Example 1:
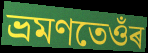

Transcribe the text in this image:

ভ্ৰমণতেওঁৰ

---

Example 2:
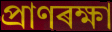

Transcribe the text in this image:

প্ৰাণৰক্ষা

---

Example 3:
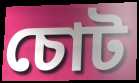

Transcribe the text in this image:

চোট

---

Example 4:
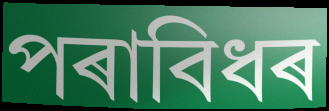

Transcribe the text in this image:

পৰাবিধৰ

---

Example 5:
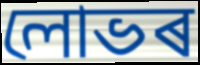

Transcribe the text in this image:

লোভৰ